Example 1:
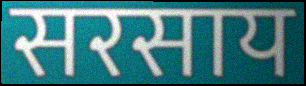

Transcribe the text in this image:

सरसाय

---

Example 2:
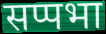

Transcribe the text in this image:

सप्पभा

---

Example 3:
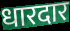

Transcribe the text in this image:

धारदार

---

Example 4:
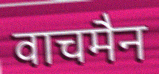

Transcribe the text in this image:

वाचमैन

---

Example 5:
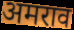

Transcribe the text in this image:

अमराव